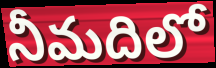
నీమదిలో